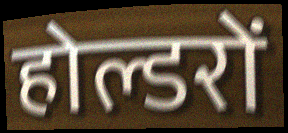
होल्डरों